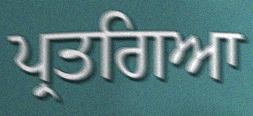
ਪ੍ਰਤਗਿਆ